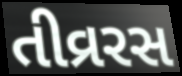
તીવ્રરસ